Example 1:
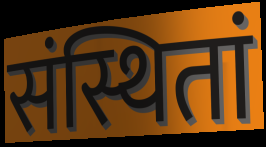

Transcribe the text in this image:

संस्थितां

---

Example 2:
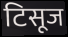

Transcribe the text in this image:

टिसूज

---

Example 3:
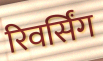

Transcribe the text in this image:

रिवर्सिंग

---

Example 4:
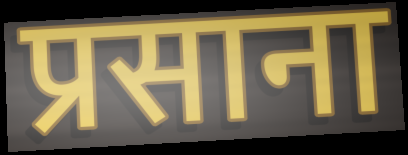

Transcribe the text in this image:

प्रसाना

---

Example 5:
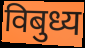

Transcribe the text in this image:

विबुध्य